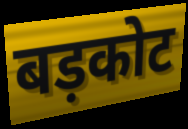
बड़कोट